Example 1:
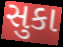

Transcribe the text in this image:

સુકા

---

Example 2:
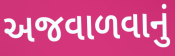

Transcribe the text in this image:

અજવાળવાનું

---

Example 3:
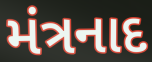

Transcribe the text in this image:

મંત્રનાદ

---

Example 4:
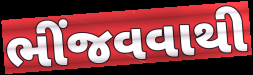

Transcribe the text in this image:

ભીંજવવાથી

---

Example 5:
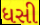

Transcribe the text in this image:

ધસી